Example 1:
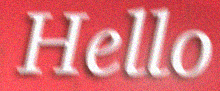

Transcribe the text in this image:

Hello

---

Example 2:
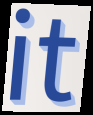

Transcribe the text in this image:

it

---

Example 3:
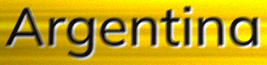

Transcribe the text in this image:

Argentina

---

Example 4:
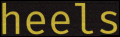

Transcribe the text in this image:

heels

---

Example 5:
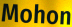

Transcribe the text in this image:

Mohon